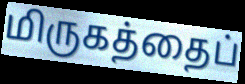
மிருகத்தைப்